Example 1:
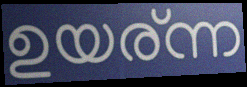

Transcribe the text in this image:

ഉയര്ന്ന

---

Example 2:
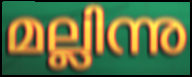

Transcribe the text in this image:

മല്ലിന്നു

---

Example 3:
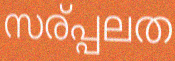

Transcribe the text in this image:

സര്പ്പലത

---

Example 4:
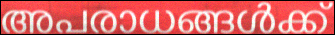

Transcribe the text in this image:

അപരാധങ്ങൾക്ക്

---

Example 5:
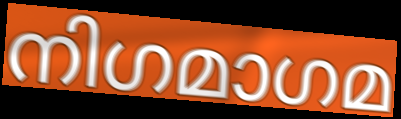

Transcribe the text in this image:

നിഗമാഗമ